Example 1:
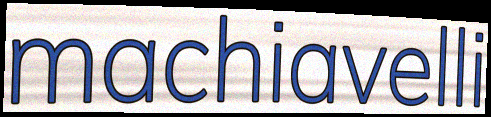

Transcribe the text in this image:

machiavelli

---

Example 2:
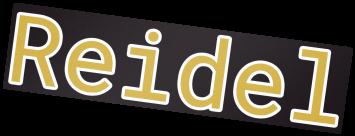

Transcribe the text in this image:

Reidel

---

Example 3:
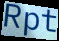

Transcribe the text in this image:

Rpt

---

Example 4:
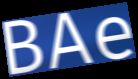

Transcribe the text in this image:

BAe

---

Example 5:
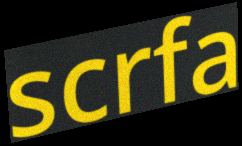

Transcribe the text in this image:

scrfa